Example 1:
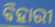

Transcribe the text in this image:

ବିହାରୀ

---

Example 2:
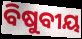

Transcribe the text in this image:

ବିଷୁବୀୟ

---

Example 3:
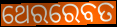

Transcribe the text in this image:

ଥେରରେବତ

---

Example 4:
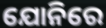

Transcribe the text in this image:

ଯୋନିରେ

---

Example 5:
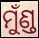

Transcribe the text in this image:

ମୁଁଣ୍ଡ